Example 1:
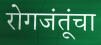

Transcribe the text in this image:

रोगजंतूंचा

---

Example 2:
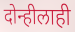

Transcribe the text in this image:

दोन्हीलाही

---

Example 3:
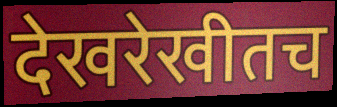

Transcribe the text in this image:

देखरेखीतच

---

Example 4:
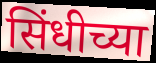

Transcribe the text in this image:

सिंधीच्या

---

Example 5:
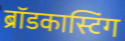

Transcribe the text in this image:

ब्रॉडकास्टिंग